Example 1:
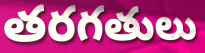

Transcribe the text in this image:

తరగతులు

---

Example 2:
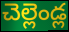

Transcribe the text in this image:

చెల్లెండ్ల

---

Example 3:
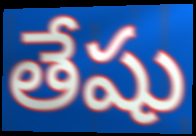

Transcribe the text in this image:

తేషు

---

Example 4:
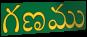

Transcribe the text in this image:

గణము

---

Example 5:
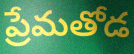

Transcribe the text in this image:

ప్రేమతోడ